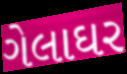
ગેલાઘર